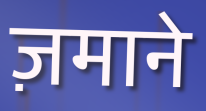
ज़माने